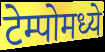
टेम्पोमध्ये